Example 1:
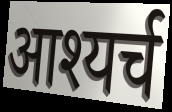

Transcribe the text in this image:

आश्यर्च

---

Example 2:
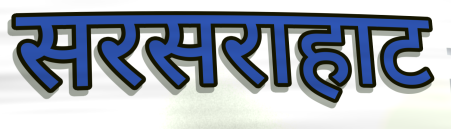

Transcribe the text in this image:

सरसराहाट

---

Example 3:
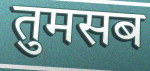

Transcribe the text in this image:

तुमसब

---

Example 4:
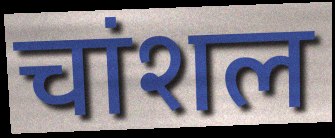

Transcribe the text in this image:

चांशल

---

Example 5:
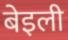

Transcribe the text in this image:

बेइली